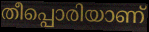
തീപ്പൊരിയാണ്